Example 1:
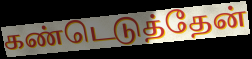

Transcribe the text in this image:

கண்டெடுத்தேன்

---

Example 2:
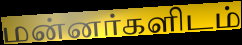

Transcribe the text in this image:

மன்னர்களிடம்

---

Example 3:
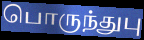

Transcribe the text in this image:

பொருந்துபு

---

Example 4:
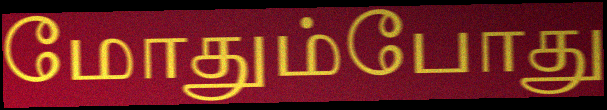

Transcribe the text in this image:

மோதும்போது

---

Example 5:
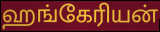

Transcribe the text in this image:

ஹங்கேரியன்